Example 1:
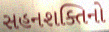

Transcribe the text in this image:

સહનશક્તિનો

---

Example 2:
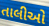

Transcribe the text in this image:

તાલીઓ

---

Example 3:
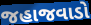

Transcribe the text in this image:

જહાજવાડો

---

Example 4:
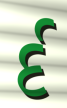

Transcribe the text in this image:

ર્દ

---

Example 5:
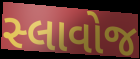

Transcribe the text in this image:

સ્લાવોજ